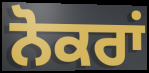
ਨੋਕਰਾਂ